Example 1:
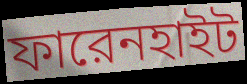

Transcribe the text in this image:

ফারেনহাইট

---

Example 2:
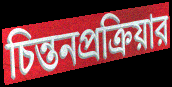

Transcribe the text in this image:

চিন্তনপ্রক্রিয়ার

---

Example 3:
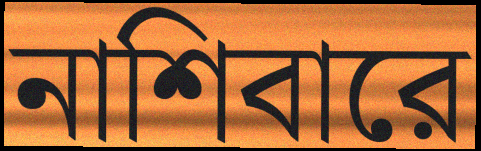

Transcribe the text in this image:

নাশিবারে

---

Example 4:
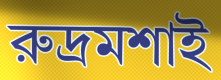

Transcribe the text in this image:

রুদ্রমশাই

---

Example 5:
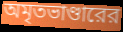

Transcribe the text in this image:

অমৃতভাণ্ডারের